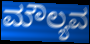
ಮೌಲ್ಯವ